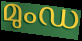
മുംഡ